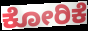
ಕೋರಿಕೆ